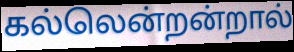
கல்லென்றன்றால்